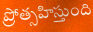
ప్రోత్సహిస్తుంది